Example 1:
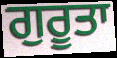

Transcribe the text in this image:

ਗੁਰੂਤਾ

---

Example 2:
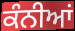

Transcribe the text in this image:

ਕੰਨੀਆਂ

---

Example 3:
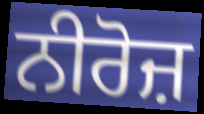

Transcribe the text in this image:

ਨੀਰੋਜ਼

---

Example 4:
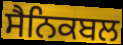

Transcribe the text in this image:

ਸੈਨਿਕਬਲ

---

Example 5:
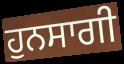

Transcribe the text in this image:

ਹੁਨਸਾਗੀ